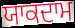
ਯਾਕਦਾਮ